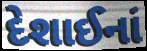
દેશાઈનાં